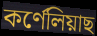
কৰ্ণেলিয়াছ